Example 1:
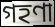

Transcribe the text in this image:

গহণা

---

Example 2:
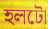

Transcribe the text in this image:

হলটো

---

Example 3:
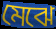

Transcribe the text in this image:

মেঝে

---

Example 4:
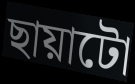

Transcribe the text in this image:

ছায়াটো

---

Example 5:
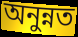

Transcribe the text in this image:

অনুন্নত